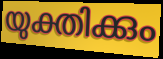
യുക്തിക്കും